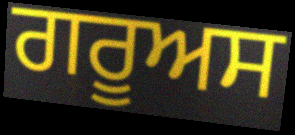
ਗਰੂਅਸ